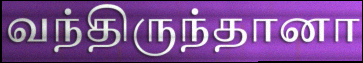
வந்திருந்தானா